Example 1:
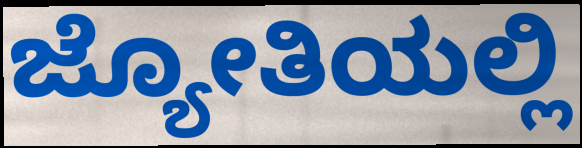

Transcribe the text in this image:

ಜ್ಯೋತಿಯಲ್ಲಿ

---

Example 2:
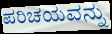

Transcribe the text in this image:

ಪರಿಚಯವನ್ನು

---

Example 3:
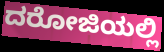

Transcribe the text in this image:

ದರೋಜಿಯಲ್ಲಿ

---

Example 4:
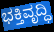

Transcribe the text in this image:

ಭಕ್ತಿವೃದ್ಧಿ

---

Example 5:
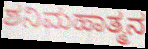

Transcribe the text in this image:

ಶನಿಮಹಾತ್ಮನ